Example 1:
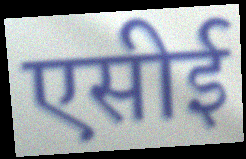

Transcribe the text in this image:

एसीई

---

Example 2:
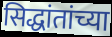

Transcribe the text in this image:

सिद्धांतांच्या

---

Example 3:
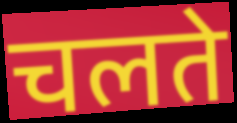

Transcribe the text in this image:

चलते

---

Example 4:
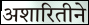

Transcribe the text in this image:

अशारितीने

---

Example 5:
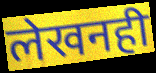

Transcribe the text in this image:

लेखनही